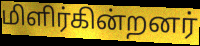
மிளிர்கின்றனர்